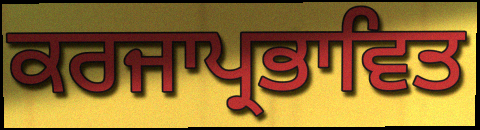
ਕਰਜਾਪ੍ਰਭਾਵਿਤ